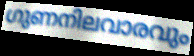
ഗുണനിലവാരവും